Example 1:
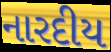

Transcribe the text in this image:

નારદીય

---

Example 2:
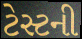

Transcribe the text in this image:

ટેસ્ટની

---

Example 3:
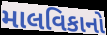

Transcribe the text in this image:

માલવિકાનો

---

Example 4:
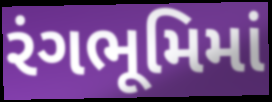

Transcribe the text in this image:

રંગભૂમિમાં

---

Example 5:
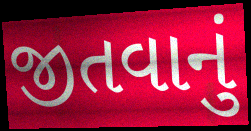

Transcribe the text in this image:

જીતવાનું